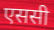
एससी